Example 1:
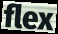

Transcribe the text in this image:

flex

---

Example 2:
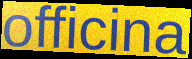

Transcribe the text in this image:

officina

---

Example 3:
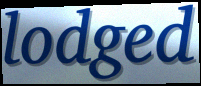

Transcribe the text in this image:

lodged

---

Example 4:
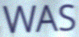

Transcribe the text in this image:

WAS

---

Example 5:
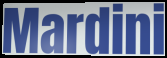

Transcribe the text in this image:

Mardini